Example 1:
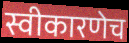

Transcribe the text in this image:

स्वीकारणेच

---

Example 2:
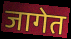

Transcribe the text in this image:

जागेत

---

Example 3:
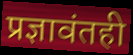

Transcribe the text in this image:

प्रज्ञावंतही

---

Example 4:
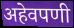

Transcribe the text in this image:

अहेवपणी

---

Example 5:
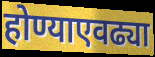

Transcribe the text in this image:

होण्याएवढ्या